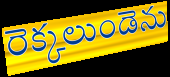
రెక్కలుండెను